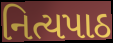
નિત્યપાઠ